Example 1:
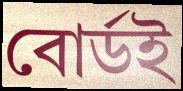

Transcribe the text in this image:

বোর্ডই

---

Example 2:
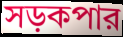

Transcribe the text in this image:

সড়কপার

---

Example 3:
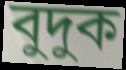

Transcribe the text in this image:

বুদুক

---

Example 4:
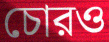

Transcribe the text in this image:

চোরও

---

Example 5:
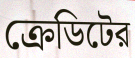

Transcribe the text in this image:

ক্রেডিটের